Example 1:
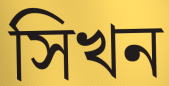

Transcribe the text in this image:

সিখন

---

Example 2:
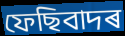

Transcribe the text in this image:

ফেছিবাদৰ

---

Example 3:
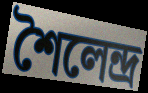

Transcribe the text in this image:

শৈলেন্দ্ৰ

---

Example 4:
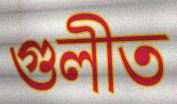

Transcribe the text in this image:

গুলীত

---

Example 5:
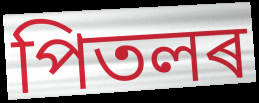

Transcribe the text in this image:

পিতলৰ